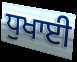
ਧੁਖਾਈ